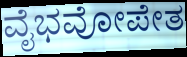
ವೈಭವೋಪೇತ